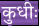
कुधीः